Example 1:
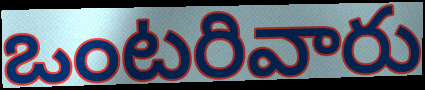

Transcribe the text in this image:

ఒంటరివారు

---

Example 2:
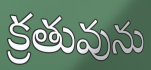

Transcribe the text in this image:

క్రతువును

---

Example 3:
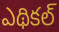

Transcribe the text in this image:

ఎథికల్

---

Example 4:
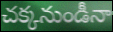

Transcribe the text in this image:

చక్కనుండీనా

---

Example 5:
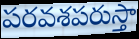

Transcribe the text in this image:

పరవశపరుస్తా